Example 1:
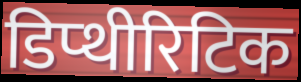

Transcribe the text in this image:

डिप्थीरिटिक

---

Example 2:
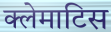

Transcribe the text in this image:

क्लेमाटिस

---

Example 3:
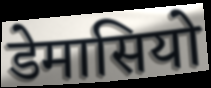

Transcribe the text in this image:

डेमासियो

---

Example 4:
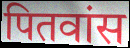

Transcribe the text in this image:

पितवांस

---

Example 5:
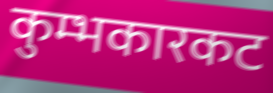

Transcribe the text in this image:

कुम्भकारकट